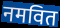
नमवित